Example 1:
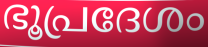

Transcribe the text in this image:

ഭൂപ്രദേശം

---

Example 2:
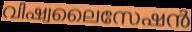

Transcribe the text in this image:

വിഷ്വലൈസേഷൻ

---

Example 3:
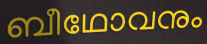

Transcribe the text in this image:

ബീഥോവനും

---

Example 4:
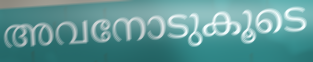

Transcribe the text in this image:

അവനോടുകൂടെ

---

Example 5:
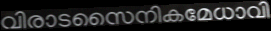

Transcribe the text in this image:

വിരാടസൈനികമേധാവി